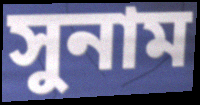
সুনাম